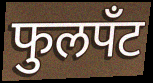
फुलपँट